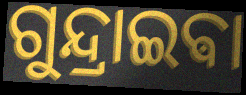
ଗୁନ୍ଦ୍ରାଇଵା